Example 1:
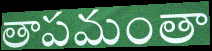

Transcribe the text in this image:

తాపమంతా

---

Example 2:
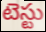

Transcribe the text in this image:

టెస్టు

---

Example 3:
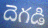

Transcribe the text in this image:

దెగడి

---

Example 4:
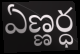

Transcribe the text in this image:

ఏణ్ణర్ధ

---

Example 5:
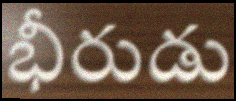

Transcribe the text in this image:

భీరుడు